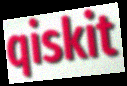
qiskit